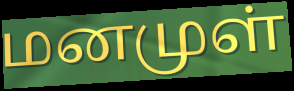
மனமுள்